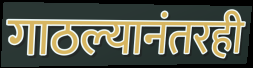
गाठल्यानंतरही